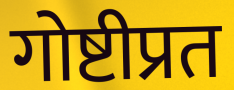
गोष्टीप्रत